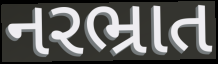
નરભ્રાત